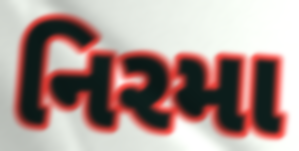
નિરમા